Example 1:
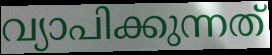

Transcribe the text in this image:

വ്യാപിക്കുന്നത്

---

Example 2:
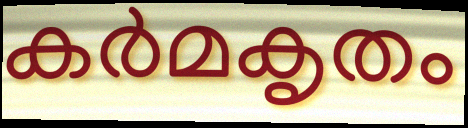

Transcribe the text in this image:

കർമകൃതം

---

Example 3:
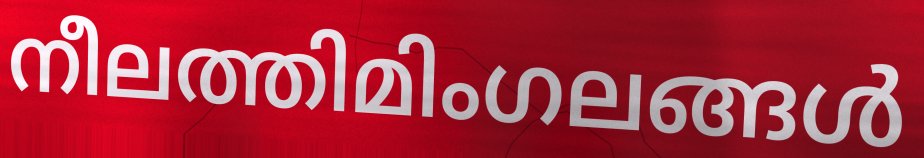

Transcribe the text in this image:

നീലത്തിമിംഗലങ്ങൾ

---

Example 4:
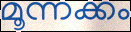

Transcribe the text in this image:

മൂന്നക്കം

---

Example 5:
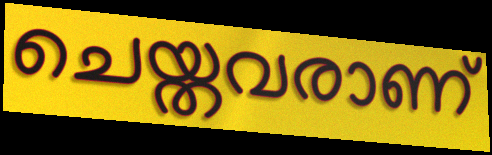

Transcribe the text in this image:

ചെയ്തവരാണ്